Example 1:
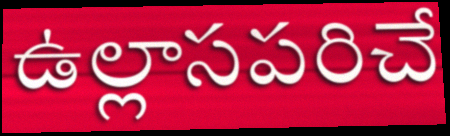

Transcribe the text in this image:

ఉల్లాసపరిచే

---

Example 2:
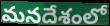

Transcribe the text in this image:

మనదేశంలో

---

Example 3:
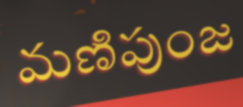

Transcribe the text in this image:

మణిపుంజ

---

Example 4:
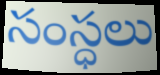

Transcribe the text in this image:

సంస్ధలు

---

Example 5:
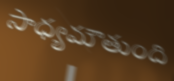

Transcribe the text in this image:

సాధ్యమౌతుంది